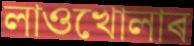
লাওখোলাৰ